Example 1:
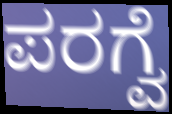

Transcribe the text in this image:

ಪರಗ್ವೆ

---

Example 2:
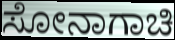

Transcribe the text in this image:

ಸೋನಾಗಾಚಿ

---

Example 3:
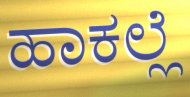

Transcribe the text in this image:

ಹಾಕಲ್ಲೆ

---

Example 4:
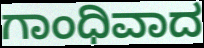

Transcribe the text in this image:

ಗಾಂಧಿವಾದ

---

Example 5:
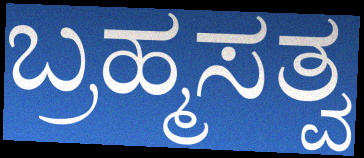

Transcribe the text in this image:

ಬ್ರಹ್ಮಸತ್ವ